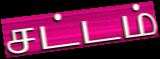
சட்டம்